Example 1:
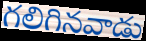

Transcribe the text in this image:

గలిగినవాడు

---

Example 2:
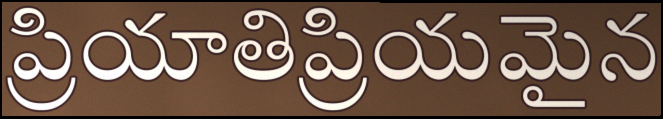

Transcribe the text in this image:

ప్రియాతిప్రియమైన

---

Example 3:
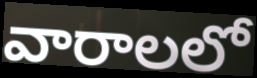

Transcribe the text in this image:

వారాలలో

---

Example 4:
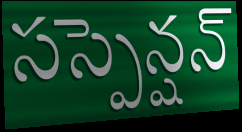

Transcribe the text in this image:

సస్పెన్షన్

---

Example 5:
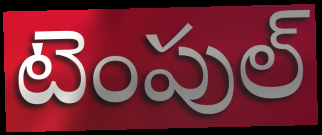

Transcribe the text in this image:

టెంపుల్